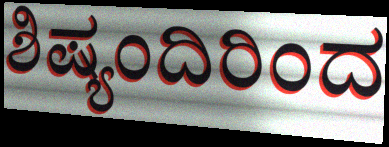
ಶಿಷ್ಯಂದಿರಿಂದ